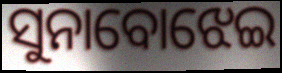
ସୁନାବୋଝେଇ